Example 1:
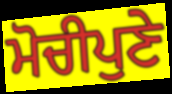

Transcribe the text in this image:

ਮੋਚੀਪੁਣੇ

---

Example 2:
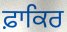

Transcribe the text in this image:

ਫ਼ਾਕਿਰ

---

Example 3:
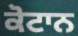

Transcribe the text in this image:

ਕੋਟਾਨ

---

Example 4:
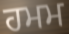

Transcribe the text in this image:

ਹਮਮ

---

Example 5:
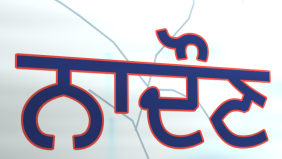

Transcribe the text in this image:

ਨਾਦੌਣ